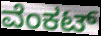
ವೆಂಕಟ್